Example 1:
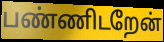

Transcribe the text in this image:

பண்ணிடறேன்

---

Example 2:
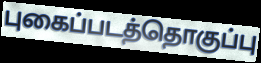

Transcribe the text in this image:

புகைப்படத்தொகுப்பு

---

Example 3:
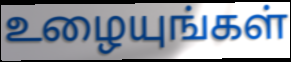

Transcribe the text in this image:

உழையுங்கள்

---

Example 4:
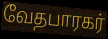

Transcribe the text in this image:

வேதபாரகர்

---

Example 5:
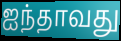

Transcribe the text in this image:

ஐந்தாவது